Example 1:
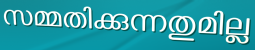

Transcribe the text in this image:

സമ്മതിക്കുന്നതുമില്ല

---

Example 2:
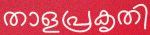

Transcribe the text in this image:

താളപ്രകൃതി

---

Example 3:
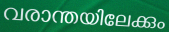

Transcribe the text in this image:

വരാന്തയിലേക്കും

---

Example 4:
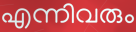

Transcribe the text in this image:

എന്നിവരും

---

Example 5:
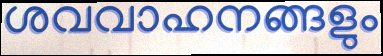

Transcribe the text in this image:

ശവവാഹനങ്ങളും